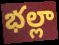
భల్లా